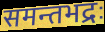
समन्तभद्रः